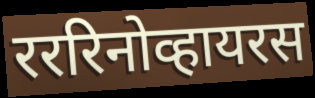
रररिनोव्हायरस